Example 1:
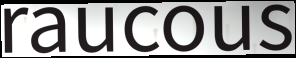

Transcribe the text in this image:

raucous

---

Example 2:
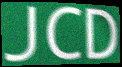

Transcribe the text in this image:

JCD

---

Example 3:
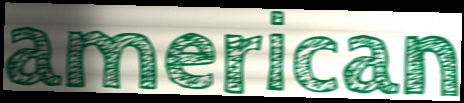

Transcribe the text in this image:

american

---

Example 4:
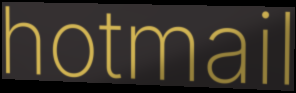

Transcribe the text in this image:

hotmail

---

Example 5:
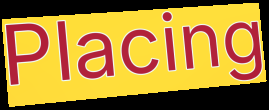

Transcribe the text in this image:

Placing